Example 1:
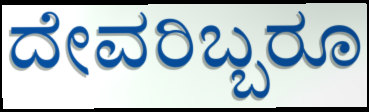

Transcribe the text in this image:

ದೇವರಿಬ್ಬರೂ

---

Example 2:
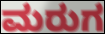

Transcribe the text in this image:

ಮರುಗ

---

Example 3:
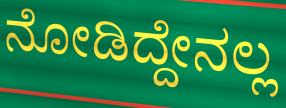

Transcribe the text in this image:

ನೋಡಿದ್ದೇನಲ್ಲ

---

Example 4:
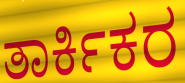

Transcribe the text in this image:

ತಾರ್ಕಿಕರ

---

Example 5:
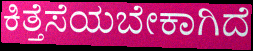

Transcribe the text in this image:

ಕಿತ್ತೆಸೆಯಬೇಕಾಗಿದೆ